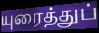
யுரைத்துப்